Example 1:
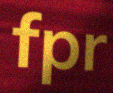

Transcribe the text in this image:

fpr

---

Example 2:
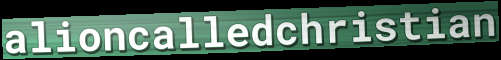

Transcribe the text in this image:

alioncalledchristian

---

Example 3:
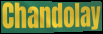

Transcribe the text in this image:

Chandolay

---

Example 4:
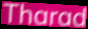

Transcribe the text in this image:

Tharad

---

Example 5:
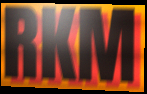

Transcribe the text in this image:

RKM